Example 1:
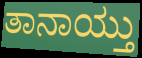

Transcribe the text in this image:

ತಾನಾಯ್ತು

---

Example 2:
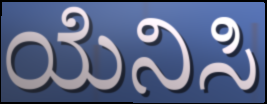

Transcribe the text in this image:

ಯೆನಿಸಿ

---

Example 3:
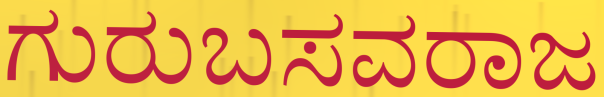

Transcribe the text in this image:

ಗುರುಬಸವರಾಜ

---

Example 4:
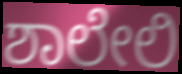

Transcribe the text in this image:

ಶಾಲೇಲಿ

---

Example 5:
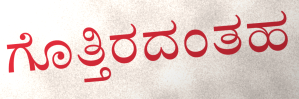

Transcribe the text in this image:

ಗೊತ್ತಿರದಂತಹ